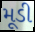
મૂડી